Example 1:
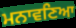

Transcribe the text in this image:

ਮਨਾਵਣਿਆ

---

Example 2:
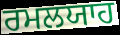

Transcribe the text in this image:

ਰਮਲਯਾਹ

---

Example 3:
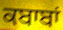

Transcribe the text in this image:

ਕਬਾਬਾਂ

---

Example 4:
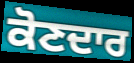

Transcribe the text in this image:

ਕੋਣਦਾਰ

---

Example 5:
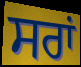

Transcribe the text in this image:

ਸਰਾਂ